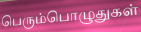
பெரும்பொழுதுகள்